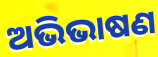
ଅଭିଭାଷଣ